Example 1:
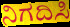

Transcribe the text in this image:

ನಿಗದಿಸಿ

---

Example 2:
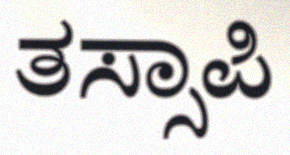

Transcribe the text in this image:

ತಸ್ಸಾಪಿ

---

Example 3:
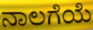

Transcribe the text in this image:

ನಾಲಗೆಯೆ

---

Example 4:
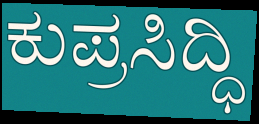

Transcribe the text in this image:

ಕುಪ್ರಸಿದ್ಧಿ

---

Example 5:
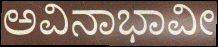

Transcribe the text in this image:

ಅವಿನಾಭಾವೀ